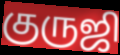
குருஜி